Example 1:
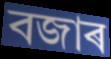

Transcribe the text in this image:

বজাৰ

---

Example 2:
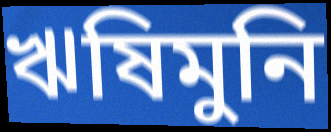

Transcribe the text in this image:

ঋষিমুনি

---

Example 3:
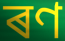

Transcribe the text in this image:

ৰণ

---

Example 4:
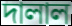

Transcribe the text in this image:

দালাল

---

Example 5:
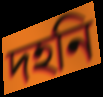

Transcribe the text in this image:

দহনি